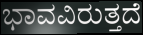
ಭಾವವಿರುತ್ತದೆ